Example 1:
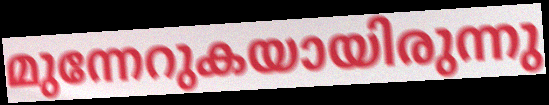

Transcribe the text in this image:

മുന്നേറുകയായിരുന്നു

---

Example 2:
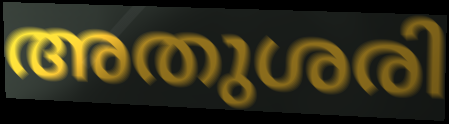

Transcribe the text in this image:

അതുശരി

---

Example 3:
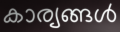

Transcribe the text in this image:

കാര്യങ്ങൾ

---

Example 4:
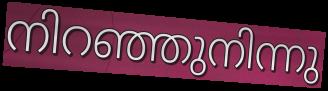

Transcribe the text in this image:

നിറഞ്ഞുനിന്നു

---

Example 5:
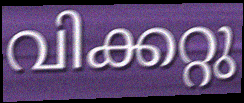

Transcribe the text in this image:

വിക്കറ്റു